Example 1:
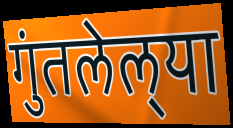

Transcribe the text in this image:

गुंतलेल्या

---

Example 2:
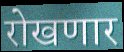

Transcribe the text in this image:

रोखणार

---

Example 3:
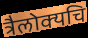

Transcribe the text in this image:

त्रैलोक्यचि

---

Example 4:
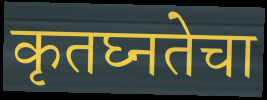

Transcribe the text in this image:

कृतघ्नतेचा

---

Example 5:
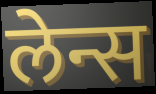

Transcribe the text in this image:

लेन्स